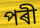
পৰী